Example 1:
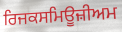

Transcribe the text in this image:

ਰਿਜਕਸਮਿਊਜ਼ੀਅਮ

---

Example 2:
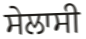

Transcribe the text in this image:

ਸੇਲਾਸੀ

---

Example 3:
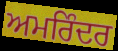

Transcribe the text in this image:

ਅਮਰਿੰਦਰ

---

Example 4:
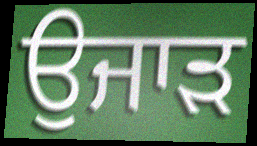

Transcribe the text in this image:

ਉਜਾੜ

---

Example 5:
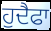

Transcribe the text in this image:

ਹੁਦੈਫਾ